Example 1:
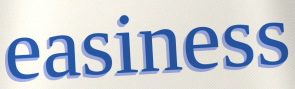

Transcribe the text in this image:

easiness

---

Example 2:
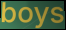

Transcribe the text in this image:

boys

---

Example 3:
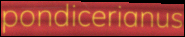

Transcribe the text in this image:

pondicerianus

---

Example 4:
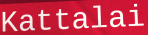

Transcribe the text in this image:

Kattalai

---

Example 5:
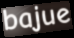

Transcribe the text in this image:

bajue